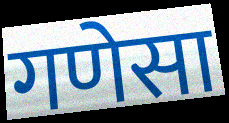
गणेसा